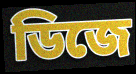
ডিজে